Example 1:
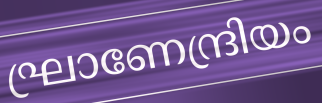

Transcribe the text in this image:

ഘ്രാണേന്ദ്രിയം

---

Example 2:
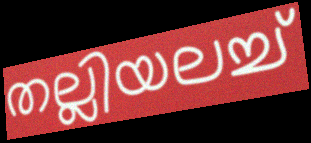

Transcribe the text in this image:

തല്ലിയലച്ച്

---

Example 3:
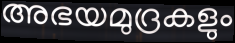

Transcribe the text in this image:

അഭയമുദ്രകളും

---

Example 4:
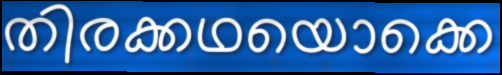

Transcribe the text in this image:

തിരക്കഥയൊക്കെ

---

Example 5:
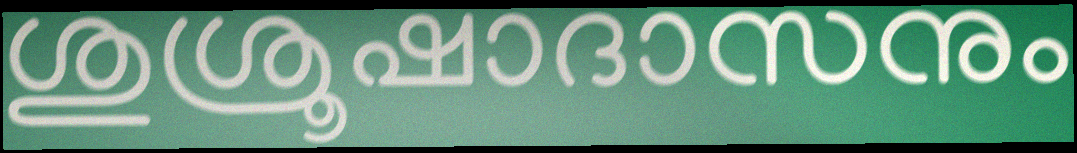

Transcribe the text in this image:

ശുശ്രൂഷാദാസനും